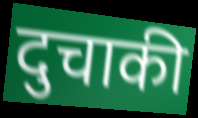
दुचाकी